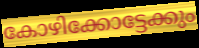
കോഴിക്കോട്ടേക്കും